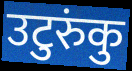
उटुरुंकु